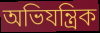
অভিযন্ত্ৰিক